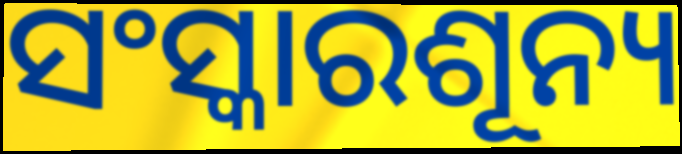
ସଂସ୍କାରଶୂନ୍ୟ